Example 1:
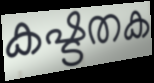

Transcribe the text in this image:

കഷ്ടതക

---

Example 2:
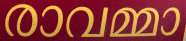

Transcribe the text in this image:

രാവമ്മാ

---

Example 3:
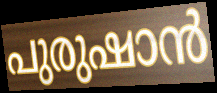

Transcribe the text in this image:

പുരുഷാൻ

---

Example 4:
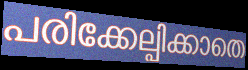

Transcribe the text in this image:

പരിക്കേല്പിക്കാതെ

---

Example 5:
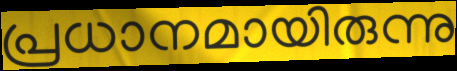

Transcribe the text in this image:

പ്രധാനമായിരുന്നു